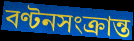
বণ্টনসংক্রান্ত